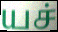
யச்